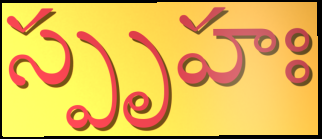
స్పృహః